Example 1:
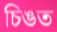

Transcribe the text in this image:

চিঙত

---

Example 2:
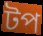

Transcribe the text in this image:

টপ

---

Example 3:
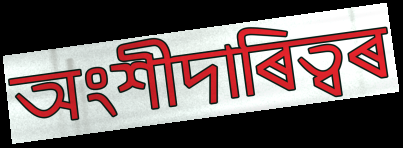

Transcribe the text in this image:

অংশীদাৰিত্বৰ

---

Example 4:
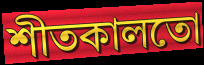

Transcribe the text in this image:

শীতকালতো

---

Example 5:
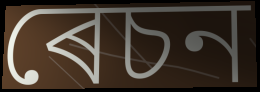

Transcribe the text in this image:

ৰেচন